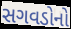
સગવડોનો